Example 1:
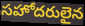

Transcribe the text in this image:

సహోదరులైన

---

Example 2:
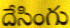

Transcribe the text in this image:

దేసింగు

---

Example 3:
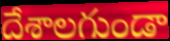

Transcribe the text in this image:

దేశాలగుండా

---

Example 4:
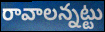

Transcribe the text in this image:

రావాలన్నట్టు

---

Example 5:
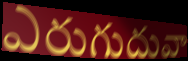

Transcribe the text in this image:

ఎరుగుదువా